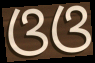
ଓଓ